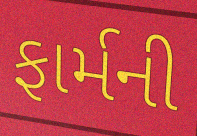
ફાર્મની